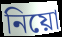
নিয়ো